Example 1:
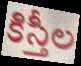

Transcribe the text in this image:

కిస్తీల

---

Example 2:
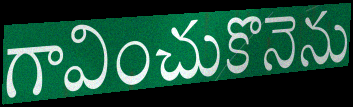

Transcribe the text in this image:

గావించుకొనెను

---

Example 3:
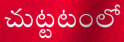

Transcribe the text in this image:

చుట్టటంలో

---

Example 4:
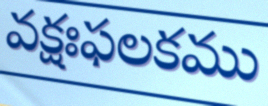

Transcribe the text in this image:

వక్షఃఫలకము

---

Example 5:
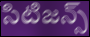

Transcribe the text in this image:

సిటిజన్స్